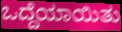
ಒದ್ದೆಯಾಯಿತು